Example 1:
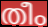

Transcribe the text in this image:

തീം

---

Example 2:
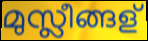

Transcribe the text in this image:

മുസ്ലീങ്ങള്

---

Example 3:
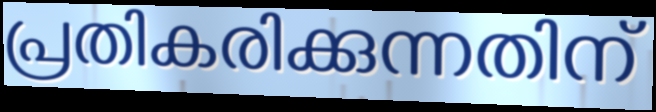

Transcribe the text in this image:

പ്രതികരിക്കുന്നതിന്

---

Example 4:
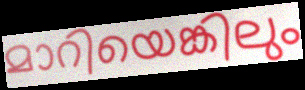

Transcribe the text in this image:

മാറിയെങ്കിലും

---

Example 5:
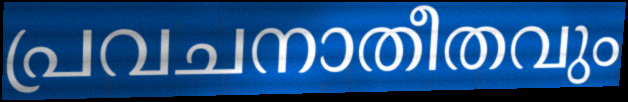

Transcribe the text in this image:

പ്രവചനാതീതവും